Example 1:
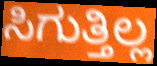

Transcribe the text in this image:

ಸಿಗುತ್ತಿಲ್ಲ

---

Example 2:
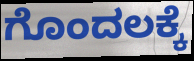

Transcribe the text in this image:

ಗೊಂದಲಕ್ಕೆ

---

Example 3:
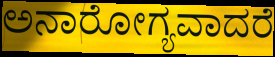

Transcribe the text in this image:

ಅನಾರೋಗ್ಯವಾದರೆ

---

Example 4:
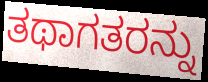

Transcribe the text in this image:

ತಥಾಗತರನ್ನು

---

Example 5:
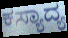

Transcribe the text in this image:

ಕಸ್ಯಾದ್ಯ